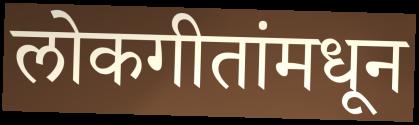
लोकगीतांमधून